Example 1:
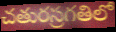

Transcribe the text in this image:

చతురస్రగతిలో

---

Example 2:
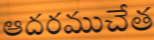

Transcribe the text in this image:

ఆదరముచేత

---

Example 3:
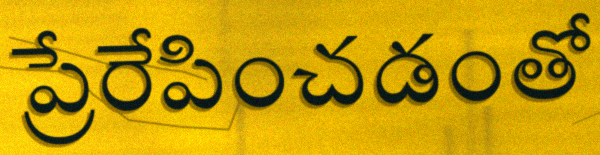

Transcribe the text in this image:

ప్రేరేపించడంతో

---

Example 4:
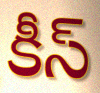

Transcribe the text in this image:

కీస్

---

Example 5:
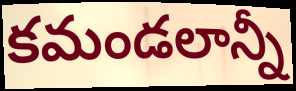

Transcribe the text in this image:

కమండలాన్నీ